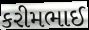
કરીમભાઈ